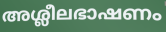
അശ്ലീലഭാഷണം